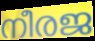
നീരജ